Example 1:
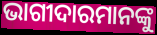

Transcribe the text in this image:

ଭାଗୀଦାରମାନଙ୍କୁ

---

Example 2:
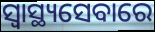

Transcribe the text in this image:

ସ୍ୱାସ୍ଥ୍ୟସେବାରେ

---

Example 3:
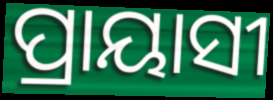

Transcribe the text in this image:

ପ୍ରାୟାସୀ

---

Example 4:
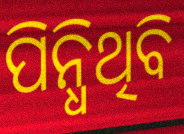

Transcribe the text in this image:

ପିନ୍ଧିଥିବି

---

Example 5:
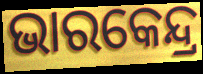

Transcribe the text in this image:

ଭାରକେନ୍ଦ୍ର